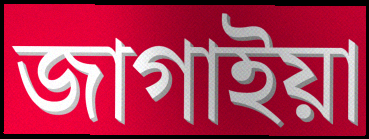
জাগাইয়া